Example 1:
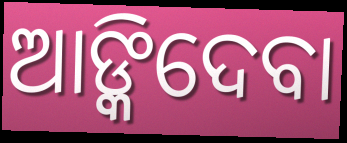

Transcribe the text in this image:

ଆଙ୍କିଦେବା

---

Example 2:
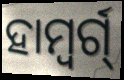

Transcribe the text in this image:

ହାମ୍ବର୍ଗ୍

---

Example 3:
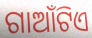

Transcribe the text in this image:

ଗାଆଁଟିଏ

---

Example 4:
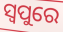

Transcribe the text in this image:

ସ୍ୱପୁରେ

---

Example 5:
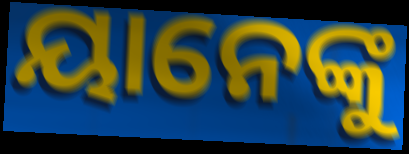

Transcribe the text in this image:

ୟାନେଙ୍କୁ